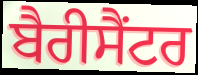
ਬੈਰੀਸੈਂਟਰ